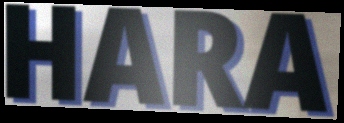
HARA